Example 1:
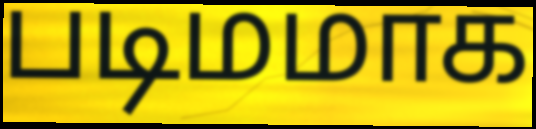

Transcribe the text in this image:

படிமமாக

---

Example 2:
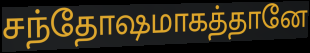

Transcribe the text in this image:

சந்தோஷமாகத்தானே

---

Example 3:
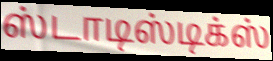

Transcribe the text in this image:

ஸ்டாடிஸ்டிக்ஸ்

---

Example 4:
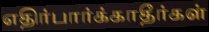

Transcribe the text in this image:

எதிர்பார்க்காதீர்கள்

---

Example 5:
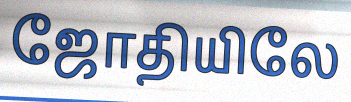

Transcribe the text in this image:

ஜோதியிலே